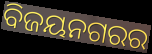
ବିଜୟନଗରର